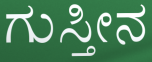
ಗುಸ್ತೀನ